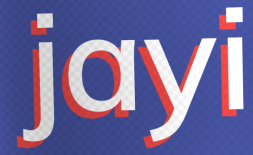
jayi